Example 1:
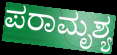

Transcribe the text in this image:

ಪರಾಮೃಶ್ಯ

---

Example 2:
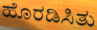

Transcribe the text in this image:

ಹೊರಡಿಸಿತು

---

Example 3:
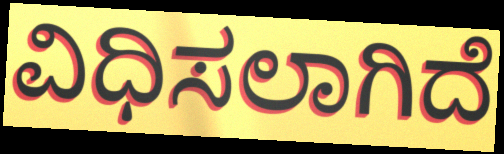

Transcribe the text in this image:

ವಿಧಿಸಲಾಗಿದೆ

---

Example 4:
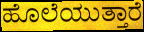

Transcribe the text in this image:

ಹೊಲೆಯುತ್ತಾರೆ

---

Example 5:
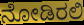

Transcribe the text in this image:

ನೋಡಿರಲಿ